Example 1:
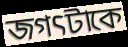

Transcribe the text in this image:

জগৎটাকে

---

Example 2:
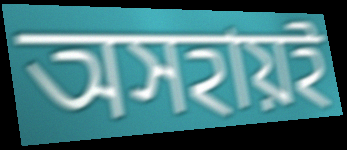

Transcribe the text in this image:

অসহায়ই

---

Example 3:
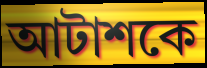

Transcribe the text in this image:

আটাশকে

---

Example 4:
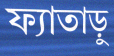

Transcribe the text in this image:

ফ্যাতাড়ু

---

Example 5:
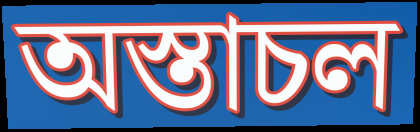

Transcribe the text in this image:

অস্তাচল